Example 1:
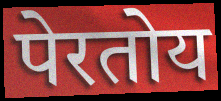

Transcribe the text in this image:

पेरतोय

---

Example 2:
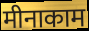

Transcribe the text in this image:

मीनाकाम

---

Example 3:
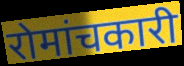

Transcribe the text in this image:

रोमांचकारी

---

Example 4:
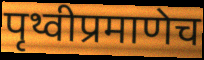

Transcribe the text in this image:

पृथ्वीप्रमाणेच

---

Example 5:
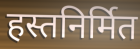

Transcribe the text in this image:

हस्तनिर्मित